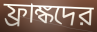
ফ্রাঙ্কদের